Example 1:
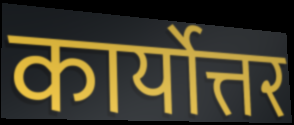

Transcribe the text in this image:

कार्योत्तर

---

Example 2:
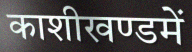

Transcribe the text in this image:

काशीखण्डमें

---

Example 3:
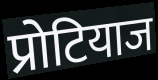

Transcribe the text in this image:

प्रोटियाज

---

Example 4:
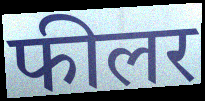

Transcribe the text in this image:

फीलर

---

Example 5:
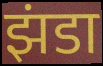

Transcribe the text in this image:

झंडा